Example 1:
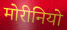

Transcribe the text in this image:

मोरीनियो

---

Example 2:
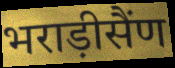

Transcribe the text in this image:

भराड़ीसैंण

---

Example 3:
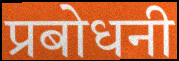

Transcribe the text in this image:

प्रबोधनी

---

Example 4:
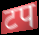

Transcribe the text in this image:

टप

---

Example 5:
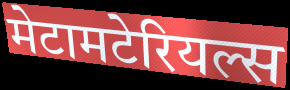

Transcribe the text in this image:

मेटामटेरियल्स